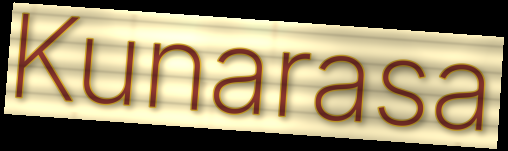
Kunarasa